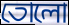
তোলো